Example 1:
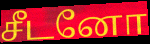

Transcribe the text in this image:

சீடனோ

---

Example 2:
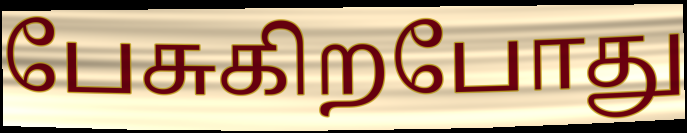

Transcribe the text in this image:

பேசுகிறபோது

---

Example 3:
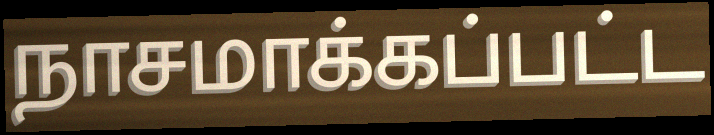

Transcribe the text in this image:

நாசமாக்கப்பட்ட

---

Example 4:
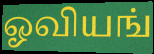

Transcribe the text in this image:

ஓவியங்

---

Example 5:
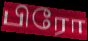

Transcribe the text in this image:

பிரோ